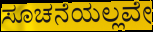
ಸೂಚನೆಯಲ್ಲವೇ